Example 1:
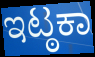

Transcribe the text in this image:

ಇಟ್ಠಕಾ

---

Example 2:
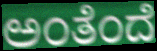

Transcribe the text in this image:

ಅಂತೆಂದೆ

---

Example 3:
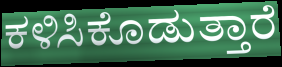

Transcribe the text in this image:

ಕಳಿಸಿಕೊಡುತ್ತಾರೆ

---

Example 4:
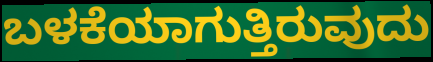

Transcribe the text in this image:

ಬಳಕೆಯಾಗುತ್ತಿರುವುದು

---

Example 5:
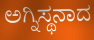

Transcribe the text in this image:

ಅಗ್ನಿಸ್ಥನಾದ